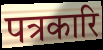
पत्रकारि